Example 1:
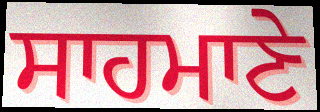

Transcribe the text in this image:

ਸਾਹਮਾਣੇ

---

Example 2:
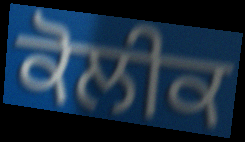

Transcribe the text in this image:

ਕੋਲੀਕ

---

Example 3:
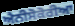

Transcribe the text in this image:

ਐਨੀਸੋਕੋਰੀਆ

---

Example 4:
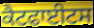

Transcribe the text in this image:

ਕੈਟਫਾਈਟਸ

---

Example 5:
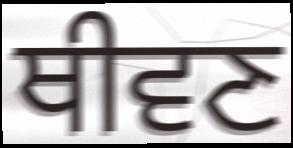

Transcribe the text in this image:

ਥੀਵਣ